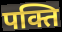
पक्ति